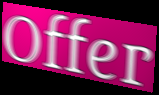
Offer